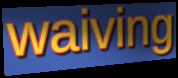
waiving